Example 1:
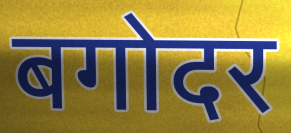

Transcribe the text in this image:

बगोदर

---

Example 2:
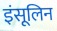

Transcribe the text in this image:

इंसूलिन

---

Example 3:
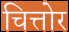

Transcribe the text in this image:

चित्तोर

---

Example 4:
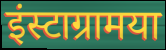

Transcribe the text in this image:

इंस्टाग्रामया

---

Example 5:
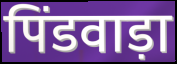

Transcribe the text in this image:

पिंडवाड़ा